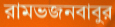
রামভজনবাবুর